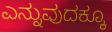
ಎನ್ನುವುದಕ್ಕೂ